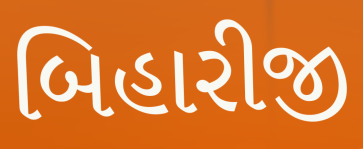
બિહારીજી